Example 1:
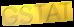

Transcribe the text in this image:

GSTAT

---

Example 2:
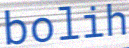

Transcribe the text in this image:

bolih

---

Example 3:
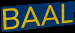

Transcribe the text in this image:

BAAL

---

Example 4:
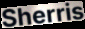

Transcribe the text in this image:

Sherris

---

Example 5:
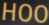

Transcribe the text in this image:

HOO